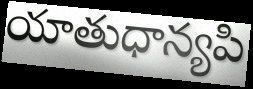
యాతుధాన్యపి